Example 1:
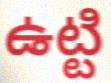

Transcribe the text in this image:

ఉట్టి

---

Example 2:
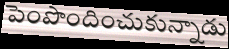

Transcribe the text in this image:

పెంపొందించుకున్నాడు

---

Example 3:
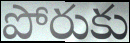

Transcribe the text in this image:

పోరుకు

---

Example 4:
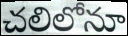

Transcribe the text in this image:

చలిలోనూ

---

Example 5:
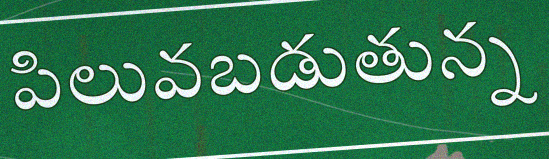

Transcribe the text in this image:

పిలువబడుతున్న